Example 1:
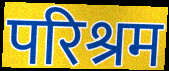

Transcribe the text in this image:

परिश्रम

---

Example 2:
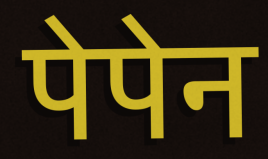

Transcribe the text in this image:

पेपेन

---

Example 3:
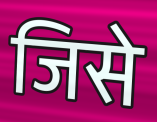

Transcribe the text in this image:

जिसे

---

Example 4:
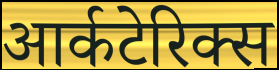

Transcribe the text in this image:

आर्कटेरिक्स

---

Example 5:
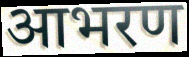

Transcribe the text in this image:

आभरण